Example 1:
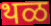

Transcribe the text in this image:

थळ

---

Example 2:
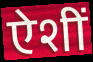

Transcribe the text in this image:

ऐशीं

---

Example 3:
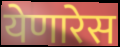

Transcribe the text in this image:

येणारेस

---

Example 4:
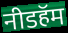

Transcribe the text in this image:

नीडहॅम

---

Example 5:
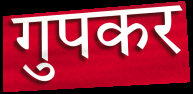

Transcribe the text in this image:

गुपकर